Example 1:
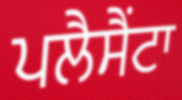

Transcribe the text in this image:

ਪਲੈਸੈਂਟਾ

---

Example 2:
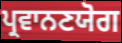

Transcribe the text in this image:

ਪ੍ਰਵਾਨਣਯੋਗ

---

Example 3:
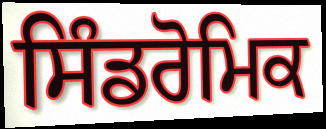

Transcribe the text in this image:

ਸਿੰਡਰੋਮਿਕ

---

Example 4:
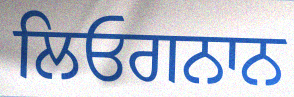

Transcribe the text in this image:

ਲਿਓਗਨਾਨ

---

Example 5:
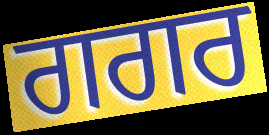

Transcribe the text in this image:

ਗਗਰ